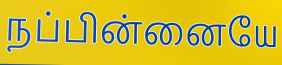
நப்பின்னையே